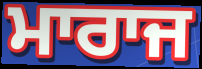
ਮਾਰਾਜ